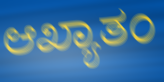
ಆಖ್ಯಾತಂ